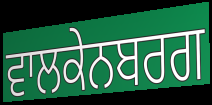
ਵਾਲਕੇਨਬਰਗ